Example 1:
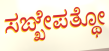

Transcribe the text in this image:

ಸಙ್ಖೇಪತ್ಥೋ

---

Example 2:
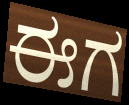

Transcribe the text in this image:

ಈಗ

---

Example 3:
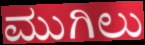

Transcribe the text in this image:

ಮುಗಿಲು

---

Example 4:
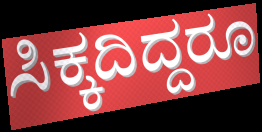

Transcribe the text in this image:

ಸಿಕ್ಕದಿದ್ದರೂ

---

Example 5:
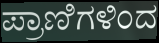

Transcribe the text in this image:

ಪ್ರಾಣಿಗಳಿಂದ